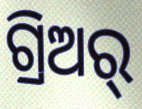
ଗ୍ରିଅର୍